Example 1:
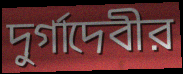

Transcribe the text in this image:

দুর্গাদেবীর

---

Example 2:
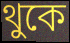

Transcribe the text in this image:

থুকে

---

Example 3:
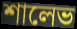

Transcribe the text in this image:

শালেভ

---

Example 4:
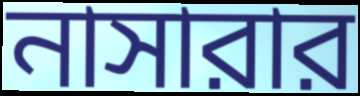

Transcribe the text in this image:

নাসারার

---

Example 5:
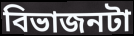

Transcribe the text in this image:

বিভাজনটা